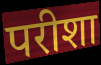
परीशा